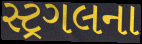
સ્ટ્રગલના